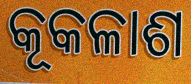
କୂକଳାଶ